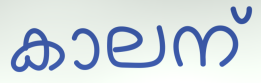
കാലന്